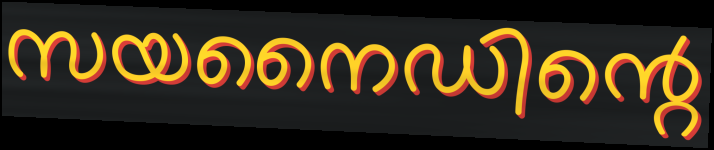
സയനൈഡിന്റെ